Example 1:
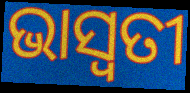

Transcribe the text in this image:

ଭାସ୍ବତୀ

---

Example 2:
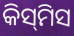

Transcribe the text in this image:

କିସ୍‌ମିସ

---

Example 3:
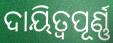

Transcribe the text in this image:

ଦାୟିତ୍ବପୂର୍ଣ୍ଣ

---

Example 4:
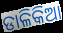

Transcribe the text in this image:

ଡାଳିକିଆ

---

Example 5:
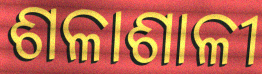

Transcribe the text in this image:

ଶଳାଶାଳୀ